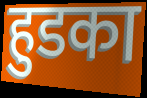
हुडका